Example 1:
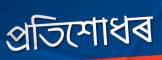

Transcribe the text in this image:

প্ৰতিশোধৰ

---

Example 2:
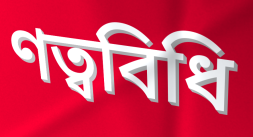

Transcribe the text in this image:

ণত্ববিধি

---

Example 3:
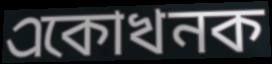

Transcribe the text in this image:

একোখনক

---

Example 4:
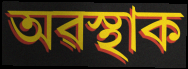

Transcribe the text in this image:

অৱস্থাক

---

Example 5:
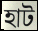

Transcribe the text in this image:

হাট